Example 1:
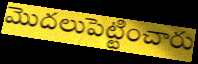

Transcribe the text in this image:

మొదలుపెట్టించారు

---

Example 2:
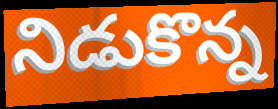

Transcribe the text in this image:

నిడుకొన్న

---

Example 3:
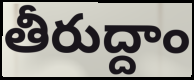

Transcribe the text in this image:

తీరుద్దాం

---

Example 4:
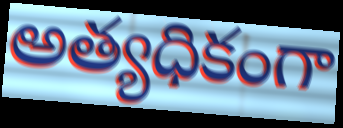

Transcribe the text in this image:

అత్యధికంగా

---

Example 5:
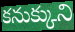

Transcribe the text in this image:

కనుక్కుని